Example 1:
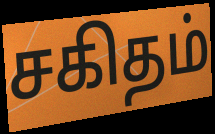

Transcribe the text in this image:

சகிதம்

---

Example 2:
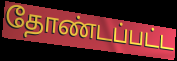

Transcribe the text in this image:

தோண்டப்பட்ட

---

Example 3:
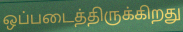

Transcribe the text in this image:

ஒப்படைத்திருக்கிறது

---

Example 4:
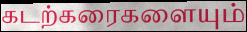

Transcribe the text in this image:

கடற்கரைகளையும்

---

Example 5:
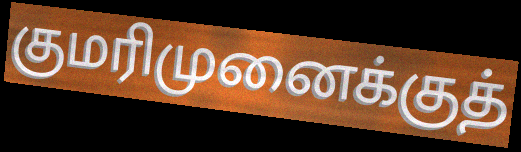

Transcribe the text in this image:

குமரிமுனைக்குத்